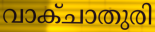
വാക്ചാതുരി